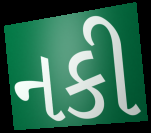
નકી